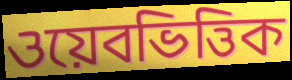
ওয়েবভিত্তিক